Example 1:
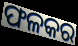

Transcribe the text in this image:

ଫଳକର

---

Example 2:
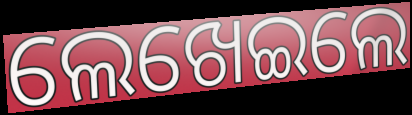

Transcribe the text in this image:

ଲେଖେଇଲେ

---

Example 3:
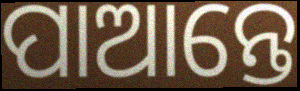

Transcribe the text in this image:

ପାଆନ୍ତେ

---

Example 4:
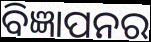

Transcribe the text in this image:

ବିଜ୍ଞାପନର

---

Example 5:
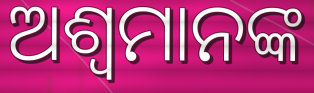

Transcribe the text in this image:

ଅଶ୍ୱମାନଙ୍କ